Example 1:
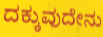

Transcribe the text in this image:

ದಕ್ಕುವುದೇನು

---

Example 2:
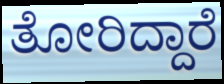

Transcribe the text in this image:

ತೋರಿದ್ದಾರೆ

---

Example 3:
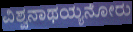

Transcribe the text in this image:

ವಿಶ್ವನಾಥಯ್ಯನೋರು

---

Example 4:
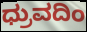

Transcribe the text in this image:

ಧ್ರುವದಿಂ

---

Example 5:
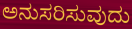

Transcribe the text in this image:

ಅನುಸರಿಸುವುದು